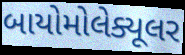
બાયોમોલેક્યૂલર